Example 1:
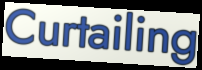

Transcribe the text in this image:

Curtailing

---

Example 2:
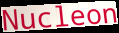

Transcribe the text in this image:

Nucleon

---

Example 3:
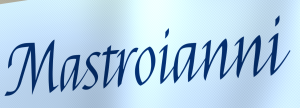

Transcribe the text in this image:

Mastroianni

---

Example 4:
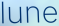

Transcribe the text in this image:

lune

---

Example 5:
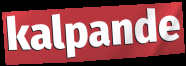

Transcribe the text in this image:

kalpande